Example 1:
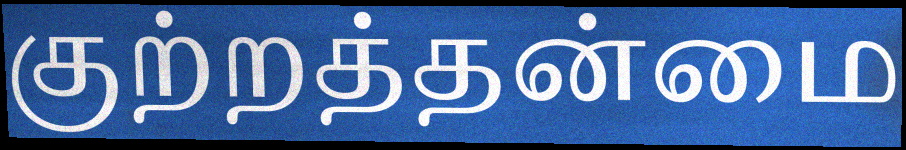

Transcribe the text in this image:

குற்றத்தன்மை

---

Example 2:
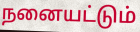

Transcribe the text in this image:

நனையட்டும்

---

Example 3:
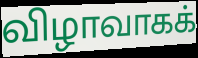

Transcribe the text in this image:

விழாவாகக்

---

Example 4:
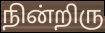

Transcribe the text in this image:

நின்றிரு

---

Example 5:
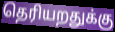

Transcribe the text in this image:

தெரியறதுக்கு